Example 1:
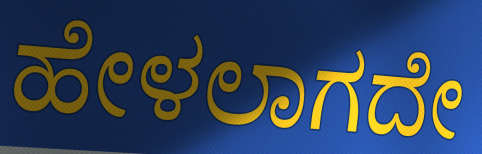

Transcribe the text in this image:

ಹೇಳಲಾಗದೇ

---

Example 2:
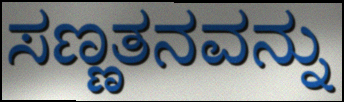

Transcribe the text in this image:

ಸಣ್ಣತನವನ್ನು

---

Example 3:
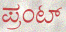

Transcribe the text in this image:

ಪ್ರಂಟ್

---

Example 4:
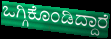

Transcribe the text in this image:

ಒಗ್ಗಿಕೊಂಡಿದ್ದಾರೆ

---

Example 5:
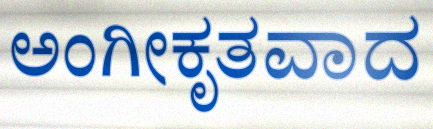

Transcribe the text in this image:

ಅಂಗೀಕೃತವಾದ